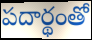
పదార్థంతో